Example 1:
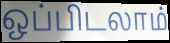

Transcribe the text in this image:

ஒப்பிடலாம்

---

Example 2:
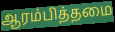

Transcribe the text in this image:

ஆரம்பித்தமை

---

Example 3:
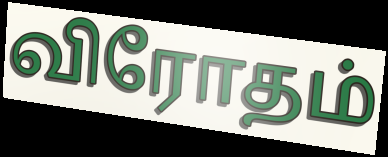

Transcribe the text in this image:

விரோதம்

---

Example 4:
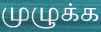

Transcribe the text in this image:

முழுக்க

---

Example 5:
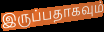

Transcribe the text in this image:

இருப்பதாகவும்